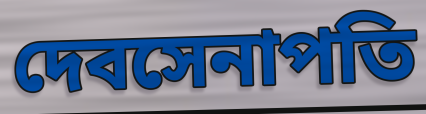
দেবসেনাপতি